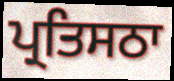
ਪ੍ਰਤਿਸਠਾ